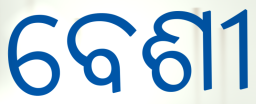
ବେଶୀ